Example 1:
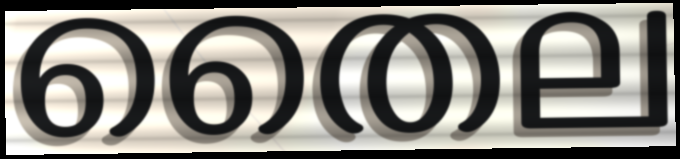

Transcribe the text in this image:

തൈല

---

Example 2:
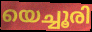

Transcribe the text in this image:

യെച്ചൂരി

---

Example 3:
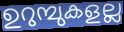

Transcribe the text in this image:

ഉറുമ്പുകളല്ല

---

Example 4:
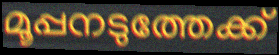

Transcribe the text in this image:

മൂപ്പനടുത്തേക്ക്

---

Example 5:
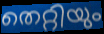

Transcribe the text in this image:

തെറ്റിയും